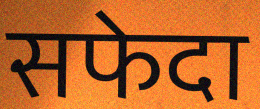
सफेदा